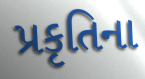
પ્રકૃતિના